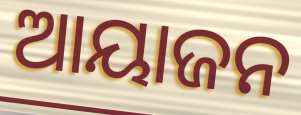
ଆୟାଜନ